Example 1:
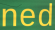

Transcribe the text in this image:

ned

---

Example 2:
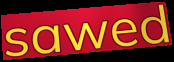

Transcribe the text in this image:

sawed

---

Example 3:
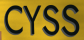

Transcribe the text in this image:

CYSS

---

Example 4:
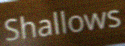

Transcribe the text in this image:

Shallows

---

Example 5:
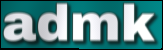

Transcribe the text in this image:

admk